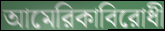
আমেরিকাবিরোধী